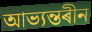
আভ্যন্তৰীন